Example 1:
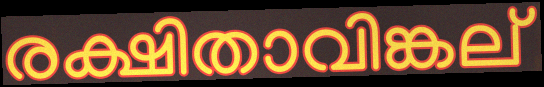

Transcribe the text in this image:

രക്ഷിതാവിങ്കല്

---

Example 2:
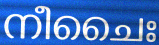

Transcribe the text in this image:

നീചൈഃ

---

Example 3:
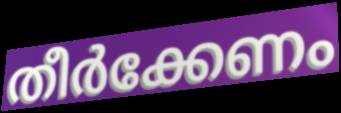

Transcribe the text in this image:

തീർക്കേണം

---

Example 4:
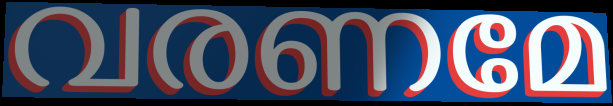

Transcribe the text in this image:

വരണമേ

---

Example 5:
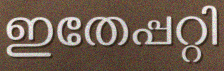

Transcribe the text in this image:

ഇതേപ്പറ്റി